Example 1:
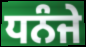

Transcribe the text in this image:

ਧਨੰਜੇ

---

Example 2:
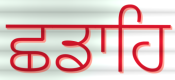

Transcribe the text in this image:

ਛਡਾਹਿ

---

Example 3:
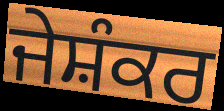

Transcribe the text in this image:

ਜੇਸ਼ੰਕਰ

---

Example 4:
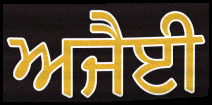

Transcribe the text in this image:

ਅਜੈਈ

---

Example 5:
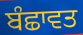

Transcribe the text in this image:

ਬੰਛਾਵਤ